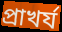
প্রাখর্য